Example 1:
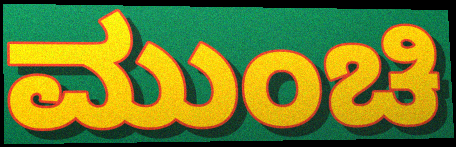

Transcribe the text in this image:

ಮುಂಚಿ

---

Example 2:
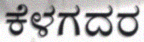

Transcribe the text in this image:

ಕೆಳಗದರ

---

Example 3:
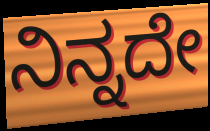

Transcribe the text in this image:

ನಿನ್ನದೇ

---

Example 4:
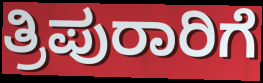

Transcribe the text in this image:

ತ್ರಿಪುರಾರಿಗೆ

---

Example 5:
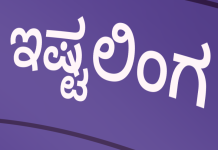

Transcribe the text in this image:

ಇಷ್ಟಲಿಂಗ